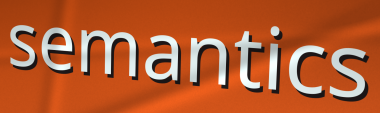
semantics